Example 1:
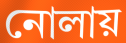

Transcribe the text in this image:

নোলায়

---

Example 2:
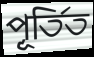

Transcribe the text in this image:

পূৰ্তিত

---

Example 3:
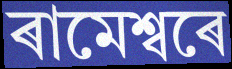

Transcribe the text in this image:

ৰামেশ্বৰে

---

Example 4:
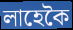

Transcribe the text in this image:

লাহেকৈ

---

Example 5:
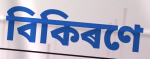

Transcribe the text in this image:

বিকিৰণে